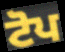
ਟੋਪ